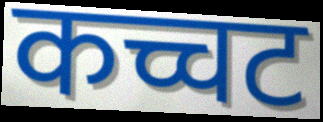
कच्चट